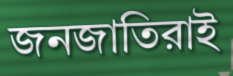
জনজাতিরাই